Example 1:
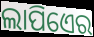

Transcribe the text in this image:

ଲାପିଏେର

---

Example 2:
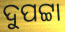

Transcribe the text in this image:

ଦୁପଟ୍ଟା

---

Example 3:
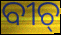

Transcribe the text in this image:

ବୀଚ୍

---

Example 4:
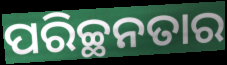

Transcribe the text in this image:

ପରିଚ୍ଛନତାର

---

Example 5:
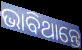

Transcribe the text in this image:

ଭାବିଥାନ୍ତେ